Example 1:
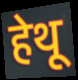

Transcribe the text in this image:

हेथू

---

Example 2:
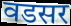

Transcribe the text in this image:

वडसर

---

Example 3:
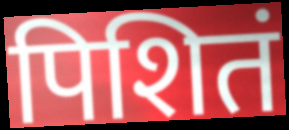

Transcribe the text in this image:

पिशितं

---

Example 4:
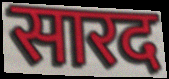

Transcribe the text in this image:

सारद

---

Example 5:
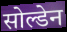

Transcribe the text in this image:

सोल्डेन